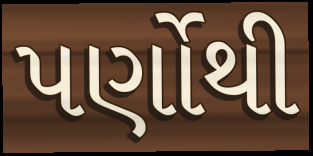
પર્ણોથી